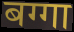
बग्गा